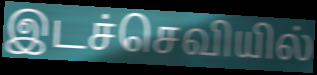
இடச்செவியில்